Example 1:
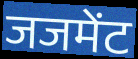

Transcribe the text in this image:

जजमेंट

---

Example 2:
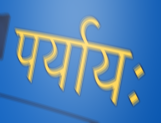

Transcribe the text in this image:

पर्यायः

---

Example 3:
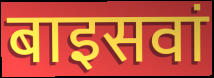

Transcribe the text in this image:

बाइसवां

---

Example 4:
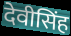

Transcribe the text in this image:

देवीसिंह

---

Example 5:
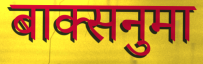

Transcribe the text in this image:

बाक्सनुमा